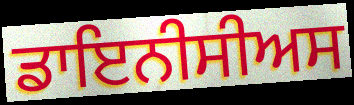
ਡਾਇਨੀਸੀਅਸ